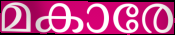
മകാരേ